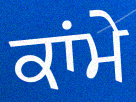
ਕਾਂਮੇ